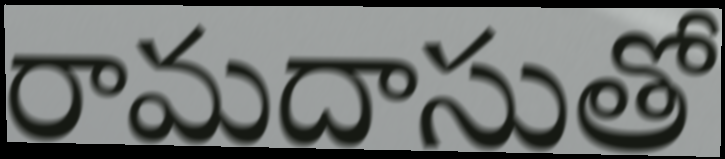
రామదాసుతో